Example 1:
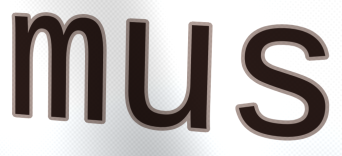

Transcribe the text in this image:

mus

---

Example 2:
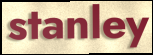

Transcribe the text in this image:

stanley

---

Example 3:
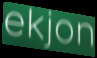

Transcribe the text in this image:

ekjon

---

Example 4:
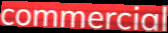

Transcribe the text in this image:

commercial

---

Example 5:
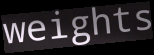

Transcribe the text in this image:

weights